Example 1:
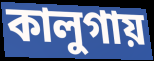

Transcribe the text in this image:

কালুগায়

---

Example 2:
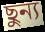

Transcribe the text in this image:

ছুন্য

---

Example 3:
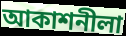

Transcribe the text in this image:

আকাশনীলা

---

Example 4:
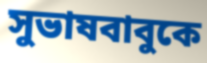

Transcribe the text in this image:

সুভাষবাবুকে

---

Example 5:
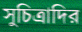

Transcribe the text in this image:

সুচিত্রাদির